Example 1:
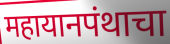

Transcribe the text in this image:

महायानपंथाचा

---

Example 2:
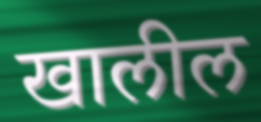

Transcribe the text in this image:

खालील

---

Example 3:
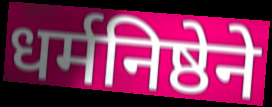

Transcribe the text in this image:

धर्मनिष्ठेने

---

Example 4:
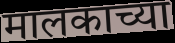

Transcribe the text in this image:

मालकाच्या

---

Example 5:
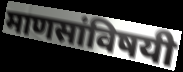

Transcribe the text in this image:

माणसांविषयी